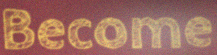
Become